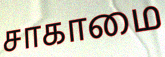
சாகாமை